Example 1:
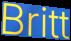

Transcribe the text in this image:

Britt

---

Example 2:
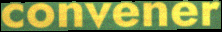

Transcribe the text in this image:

convener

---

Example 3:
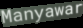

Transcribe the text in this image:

Manyawar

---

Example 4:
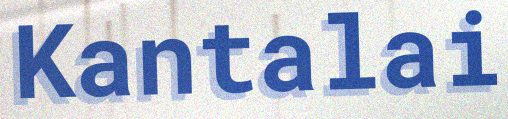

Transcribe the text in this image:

Kantalai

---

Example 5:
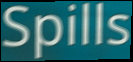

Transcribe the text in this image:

Spills